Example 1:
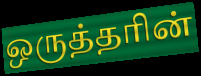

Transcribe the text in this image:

ஒருத்தரின்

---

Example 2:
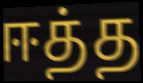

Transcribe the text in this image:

ஈத்த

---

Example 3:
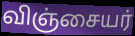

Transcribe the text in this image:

விஞ்சையர்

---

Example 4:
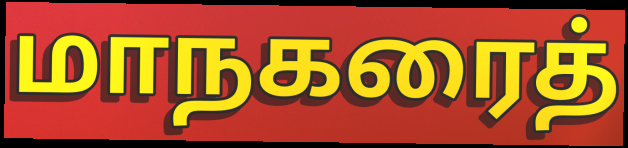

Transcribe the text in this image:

மாநகரைத்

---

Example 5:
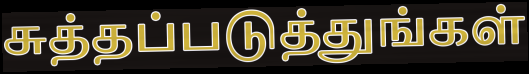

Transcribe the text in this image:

சுத்தப்படுத்துங்கள்